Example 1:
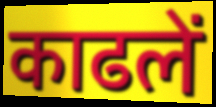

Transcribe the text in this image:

काढलें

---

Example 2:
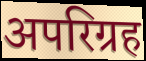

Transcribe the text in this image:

अपरिग्रह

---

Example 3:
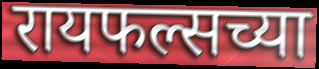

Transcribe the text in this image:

रायफल्सच्या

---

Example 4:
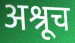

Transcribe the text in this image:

अश्रूच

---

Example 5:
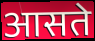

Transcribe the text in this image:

आसते